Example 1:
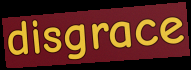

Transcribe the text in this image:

disgrace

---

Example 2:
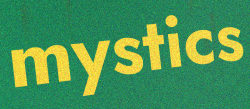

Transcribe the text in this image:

mystics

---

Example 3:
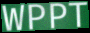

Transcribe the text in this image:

WPPT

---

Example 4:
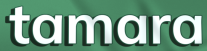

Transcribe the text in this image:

tamara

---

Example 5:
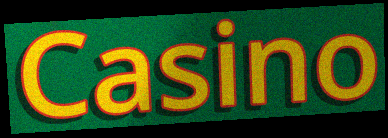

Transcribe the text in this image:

Casino